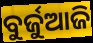
ବୁର୍ଜୁଆଜି